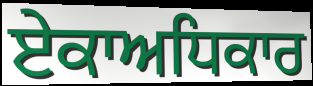
ਏਕਾਅਧਿਕਾਰ